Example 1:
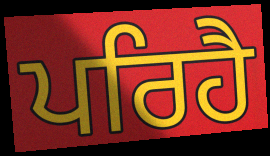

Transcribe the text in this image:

ਪਰਿਹੈ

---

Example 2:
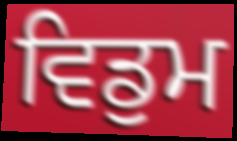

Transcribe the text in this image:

ਵਿਡੁਮ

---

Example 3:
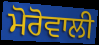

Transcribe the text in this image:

ਮੋਰੋਵਾਲੀ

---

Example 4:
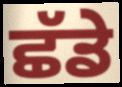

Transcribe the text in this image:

ਛੱਡੇ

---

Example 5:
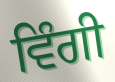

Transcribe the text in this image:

ਵਿੰਗੀ